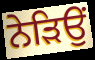
ਨੇੜਿਉਂ